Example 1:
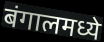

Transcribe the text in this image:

बंगालमध्ये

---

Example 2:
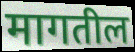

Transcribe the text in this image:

मागतील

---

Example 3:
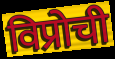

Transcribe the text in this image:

विप्रोची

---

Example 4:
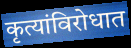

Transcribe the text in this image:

कृत्यांविरोधात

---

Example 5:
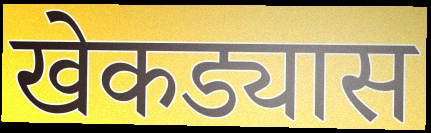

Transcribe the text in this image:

खेकड्यास